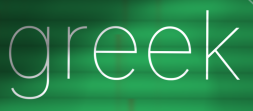
greek